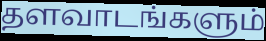
தளவாடங்களும்